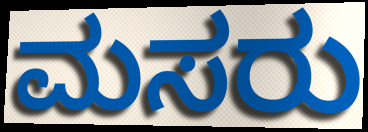
ಮಸರು